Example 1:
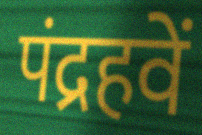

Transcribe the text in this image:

पंद्रहवें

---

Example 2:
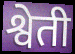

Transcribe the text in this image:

श्वेती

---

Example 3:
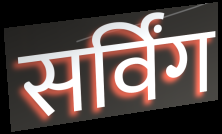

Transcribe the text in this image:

सर्विंग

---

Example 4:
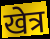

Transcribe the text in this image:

खेत्र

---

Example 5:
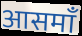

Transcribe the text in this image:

आसमाँ